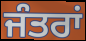
ਜੰਤਰਾਂ